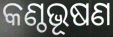
କଣ୍ଠଭୂଷଣ